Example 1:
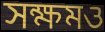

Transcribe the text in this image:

সক্ষমও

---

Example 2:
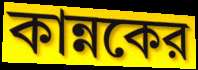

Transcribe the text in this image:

কান্নকের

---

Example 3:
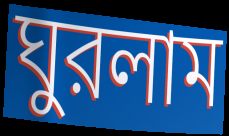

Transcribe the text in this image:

ঘুরলাম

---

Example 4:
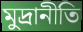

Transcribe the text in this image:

মুদ্রানীতি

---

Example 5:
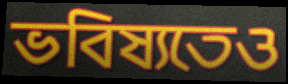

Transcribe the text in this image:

ভবিষ্যতেও